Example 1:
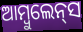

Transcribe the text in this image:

ଆମ୍ବୁଲେନ୍‍ସ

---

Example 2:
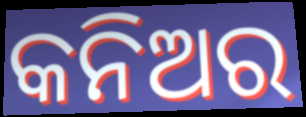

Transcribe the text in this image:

କନିଅର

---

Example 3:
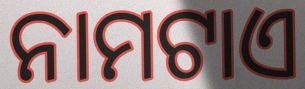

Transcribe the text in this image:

ନାମଟାଏ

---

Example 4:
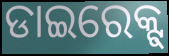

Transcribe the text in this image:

ଡାଇରେକ୍ଟ୍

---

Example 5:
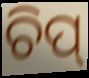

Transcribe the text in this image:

ଚିପ୍